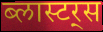
ब्लास्टर्स